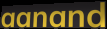
aanand